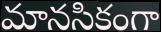
మానసికంగా